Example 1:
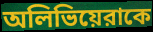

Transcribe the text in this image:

অলিভিয়েরাকে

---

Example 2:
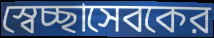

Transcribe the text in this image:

স্বেচ্ছাসেবকের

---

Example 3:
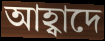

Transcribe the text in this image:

আহ্বাদে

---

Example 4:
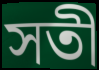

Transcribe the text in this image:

সতী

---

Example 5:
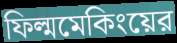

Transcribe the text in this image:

ফিল্মমেকিংয়ের